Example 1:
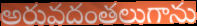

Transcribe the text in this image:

అరువదంతలుగాను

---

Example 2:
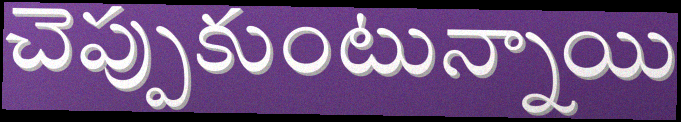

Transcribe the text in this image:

చెప్పుకుంటున్నాయి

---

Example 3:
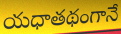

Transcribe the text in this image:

యధాతథంగానే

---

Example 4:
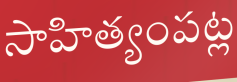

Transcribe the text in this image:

సాహిత్యంపట్ల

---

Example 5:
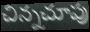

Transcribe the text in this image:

చిన్నచూపు